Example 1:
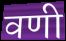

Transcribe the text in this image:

वणी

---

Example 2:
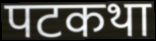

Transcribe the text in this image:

पटकथा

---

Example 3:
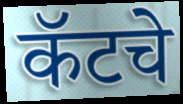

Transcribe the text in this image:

कॅटचे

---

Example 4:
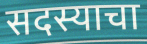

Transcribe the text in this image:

सदस्याचा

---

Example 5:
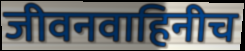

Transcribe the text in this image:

जीवनवाहिनीच